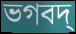
ভগবদ্